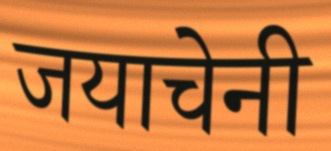
जयाचेनी